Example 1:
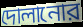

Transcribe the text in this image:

দোলানোর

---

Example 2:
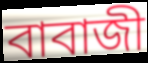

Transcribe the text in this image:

বাবাজী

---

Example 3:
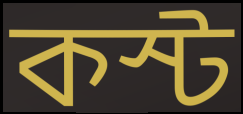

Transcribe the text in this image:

কস্ট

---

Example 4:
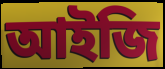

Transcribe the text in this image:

আইজি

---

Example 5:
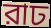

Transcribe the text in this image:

রাঢ